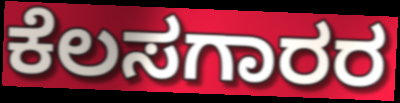
ಕೆಲಸಗಾರರ